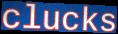
clucks